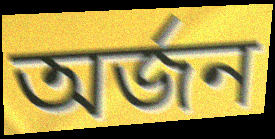
অর্জন